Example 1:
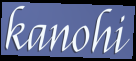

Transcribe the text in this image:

kanohi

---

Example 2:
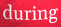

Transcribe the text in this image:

during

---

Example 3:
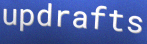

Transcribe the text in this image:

updrafts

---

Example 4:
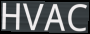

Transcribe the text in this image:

HVAC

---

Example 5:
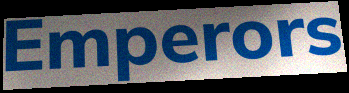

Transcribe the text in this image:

Emperors